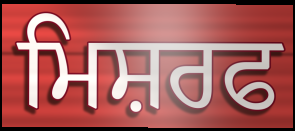
ਮਿਸ਼ਰਫ